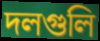
দলগুলি